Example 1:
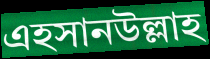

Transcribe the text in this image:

এহসানউল্লাহ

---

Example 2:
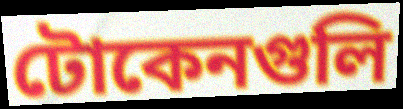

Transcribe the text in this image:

টোকেনগুলি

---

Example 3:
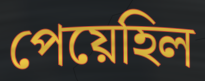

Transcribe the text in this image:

পেয়েহিল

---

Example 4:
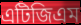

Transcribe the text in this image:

এটিজিএম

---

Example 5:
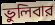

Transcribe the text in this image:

ভুলিবার